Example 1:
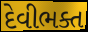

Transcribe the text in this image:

દેવીભક્ત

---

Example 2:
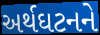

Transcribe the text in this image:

અર્થઘટનને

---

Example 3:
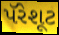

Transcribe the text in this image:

પૅરેશૂટ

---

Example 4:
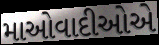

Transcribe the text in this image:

માઓવાદીઓએ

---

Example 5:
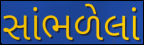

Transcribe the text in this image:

સાંભળેલાં